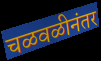
चळवळीनंतर